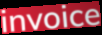
invoice